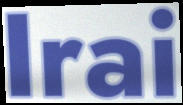
Irai